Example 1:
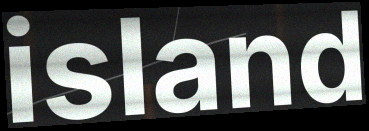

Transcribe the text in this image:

island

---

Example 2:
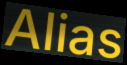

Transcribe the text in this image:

Alias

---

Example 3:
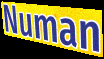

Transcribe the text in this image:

Numan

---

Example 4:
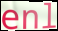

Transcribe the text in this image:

enl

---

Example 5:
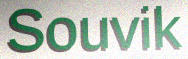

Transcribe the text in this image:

Souvik